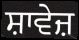
ਸ਼ਾਵੇਜ਼